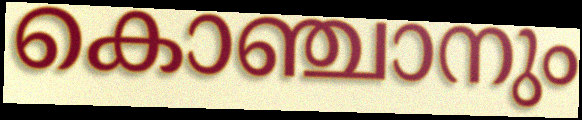
കൊഞ്ചാനും